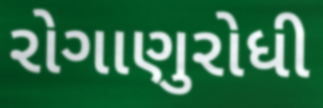
રોગાણુરોધી